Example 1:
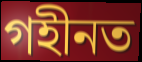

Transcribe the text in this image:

গহীনত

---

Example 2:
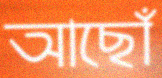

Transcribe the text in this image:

আছোঁ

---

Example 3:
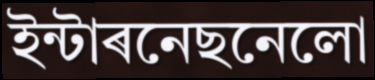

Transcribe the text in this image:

ইন্টাৰনেছনেলো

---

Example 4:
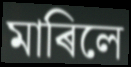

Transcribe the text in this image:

মাৰিলে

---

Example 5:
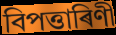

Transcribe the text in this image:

বিপত্তাৰিণী